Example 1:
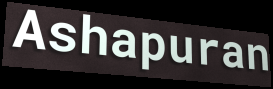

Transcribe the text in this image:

Ashapuran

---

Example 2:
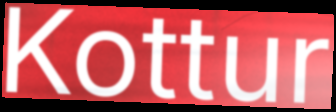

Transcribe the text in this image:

Kottur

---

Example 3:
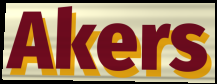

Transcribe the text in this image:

Akers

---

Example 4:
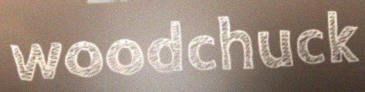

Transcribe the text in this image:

woodchuck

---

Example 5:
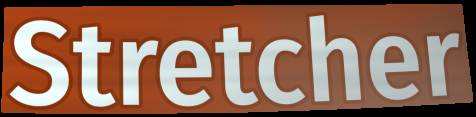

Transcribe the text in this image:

Stretcher